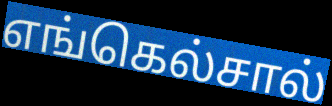
எங்கெல்சால்